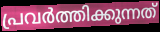
പ്രവർത്തിക്കുന്നത്